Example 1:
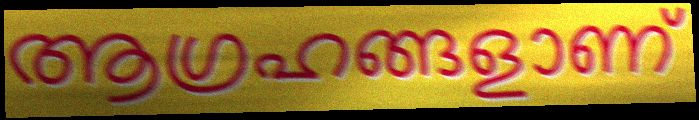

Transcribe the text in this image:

ആഗ്രഹങ്ങളാണ്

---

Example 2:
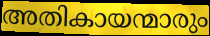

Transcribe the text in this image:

അതികായന്മാരും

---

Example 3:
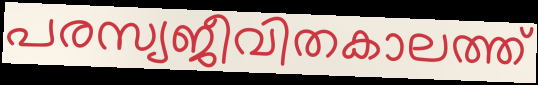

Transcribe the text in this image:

പരസ്യജീവിതകാലത്ത്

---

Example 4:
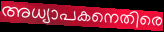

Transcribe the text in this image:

അധ്യാപകനെതിരെ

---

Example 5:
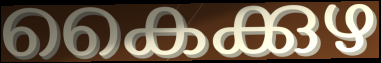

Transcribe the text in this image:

കൈക്കുഴ